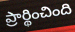
ప్రార్థించింది